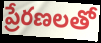
ప్రేరణలతో